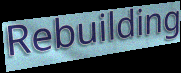
Rebuilding